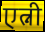
एत्नी